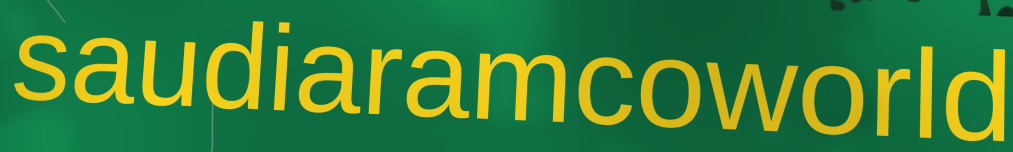
saudiaramcoworld